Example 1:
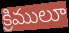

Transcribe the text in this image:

క్రిములూ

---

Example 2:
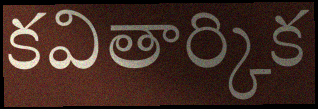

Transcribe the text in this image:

కవితార్కిక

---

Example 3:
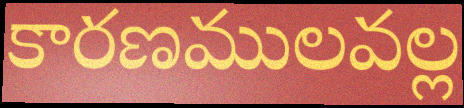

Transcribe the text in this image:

కారణములవల్ల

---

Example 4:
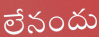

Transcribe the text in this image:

లేనందు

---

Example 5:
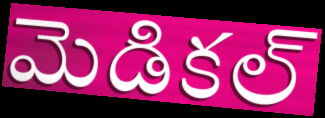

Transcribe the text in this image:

మెడికల్